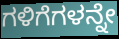
ಗಳಿಗೆಗಳನ್ನೇ